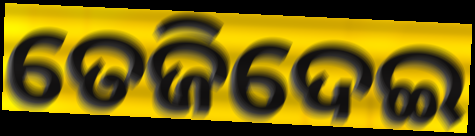
ତେଜିଦେଇ